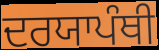
ਦਰਯਾਪੰਥੀ